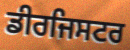
ਡੀਰਜਿਸਟਰ